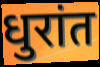
धुरांत